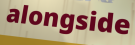
alongside